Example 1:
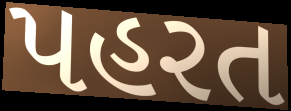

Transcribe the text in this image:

પહરત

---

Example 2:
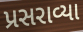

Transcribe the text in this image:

પ્રસરાવ્યા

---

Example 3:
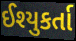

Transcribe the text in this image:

ઈશ્યુકર્તા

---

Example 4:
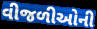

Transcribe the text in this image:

વીજળીઓની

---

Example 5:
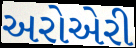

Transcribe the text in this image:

અરોએરી